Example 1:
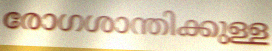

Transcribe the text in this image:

രോഗശാന്തിക്കുള്ള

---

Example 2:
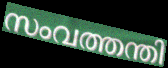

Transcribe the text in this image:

സംവത്തന്തി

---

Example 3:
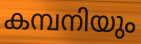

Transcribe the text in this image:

കമ്പനിയും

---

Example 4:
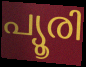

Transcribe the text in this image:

പ്യൂരി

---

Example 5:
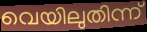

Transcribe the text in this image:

വെയിലുതിന്ന്